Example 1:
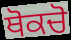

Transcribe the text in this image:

ਥੋਕਚੋ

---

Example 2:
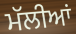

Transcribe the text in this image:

ਮੱਲੀਆਂ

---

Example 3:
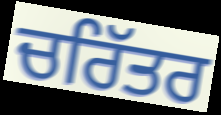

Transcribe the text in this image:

ਚਰਿੱਤਰ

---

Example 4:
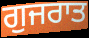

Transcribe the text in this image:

ਗੁਜਰਾਤ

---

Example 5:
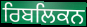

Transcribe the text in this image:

ਰਿਬਲਿਕਨ